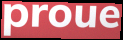
proue